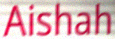
Aishah